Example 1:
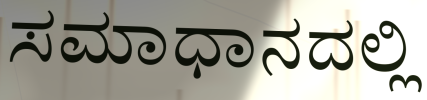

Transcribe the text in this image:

ಸಮಾಧಾನದಲ್ಲಿ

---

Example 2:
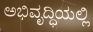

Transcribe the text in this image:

ಅಭಿವೃದ್ಧಿಯಲ್ಲಿ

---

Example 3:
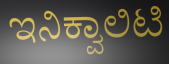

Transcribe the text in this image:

ಇನಿಕ್ವಾಲಿಟಿ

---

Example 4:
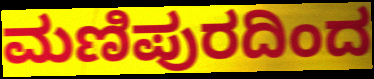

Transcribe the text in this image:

ಮಣಿಪುರದಿಂದ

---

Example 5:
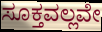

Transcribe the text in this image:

ಸೂಕ್ತವಲ್ಲವೇ